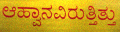
ಆಹ್ವಾನವಿರುತ್ತಿತ್ತು